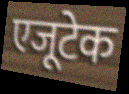
एजूटेक